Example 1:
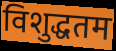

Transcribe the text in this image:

विशुद्धतम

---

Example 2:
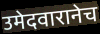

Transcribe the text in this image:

उमेदवारानेच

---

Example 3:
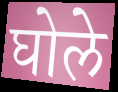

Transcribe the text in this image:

घोले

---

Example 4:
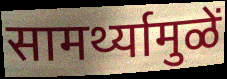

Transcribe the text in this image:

सामर्थ्यामुळें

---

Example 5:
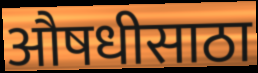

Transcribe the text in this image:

औषधीसाठा